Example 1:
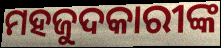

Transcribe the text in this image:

ମହଜୁଦକାରୀଙ୍କ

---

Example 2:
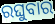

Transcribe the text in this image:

ରଘୁବାର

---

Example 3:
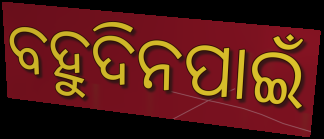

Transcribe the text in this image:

ବହୁଦିନପାଇଁ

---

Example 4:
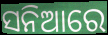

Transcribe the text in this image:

ସନିଆରେ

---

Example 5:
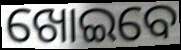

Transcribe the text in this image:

ଖୋଇବେ